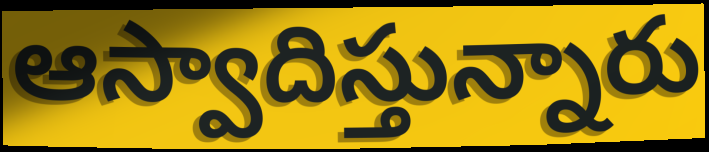
ఆస్వాదిస్తున్నారు